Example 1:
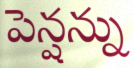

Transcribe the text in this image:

పెన్షన్ను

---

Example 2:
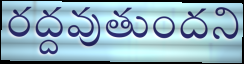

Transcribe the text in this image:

రద్దవుతుందని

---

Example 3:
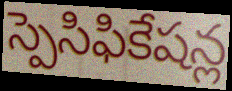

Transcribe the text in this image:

స్పెసిఫికేషన్ల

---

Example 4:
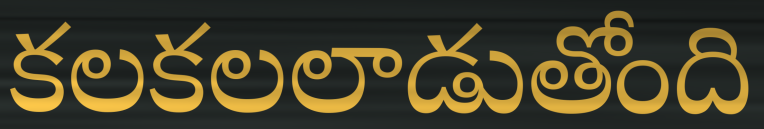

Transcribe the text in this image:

కలకలలాడుతోంది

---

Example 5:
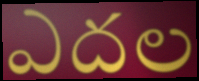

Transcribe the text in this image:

ఎదల